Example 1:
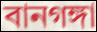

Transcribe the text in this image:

বানগঙ্গা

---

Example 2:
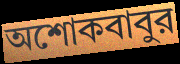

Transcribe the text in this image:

অশোকবাবুর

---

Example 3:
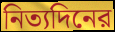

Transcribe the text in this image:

নিত্যদিনের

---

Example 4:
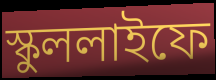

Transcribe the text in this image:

স্কুললাইফে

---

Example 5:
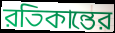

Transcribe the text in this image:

রতিকান্তের